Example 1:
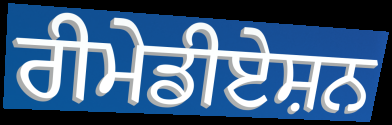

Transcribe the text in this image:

ਰੀਮੇਡੀਏਸ਼ਨ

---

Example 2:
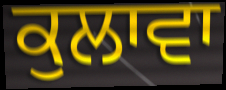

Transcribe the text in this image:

ਕੁਲਾਵਾ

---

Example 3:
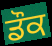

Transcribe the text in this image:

ਡੌਕ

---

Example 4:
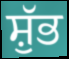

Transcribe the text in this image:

ਸ਼ੁੱਭ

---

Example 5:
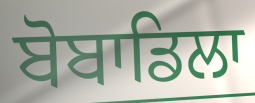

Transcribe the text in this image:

ਬੋਬਾਡਿਲਾ